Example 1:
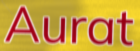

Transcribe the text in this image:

Aurat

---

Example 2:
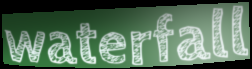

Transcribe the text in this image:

waterfall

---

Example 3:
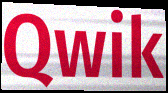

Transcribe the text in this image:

Qwik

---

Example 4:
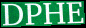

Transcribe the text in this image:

DPHE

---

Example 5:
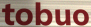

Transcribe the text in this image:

tobuo